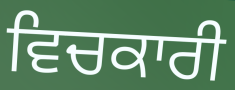
ਵਿਚਕਾਰੀ